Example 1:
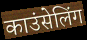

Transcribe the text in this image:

काउंसेलिंग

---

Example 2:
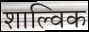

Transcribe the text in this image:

शाल्विक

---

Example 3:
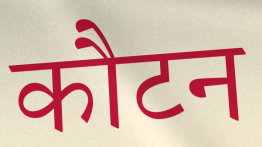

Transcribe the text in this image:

कौटन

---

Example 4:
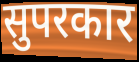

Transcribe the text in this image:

सुपरकार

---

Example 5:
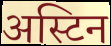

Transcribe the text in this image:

अस्टिन